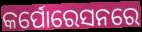
କର୍ପୋରେସନରେ